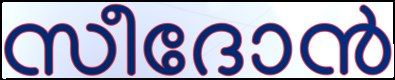
സീദോൻ